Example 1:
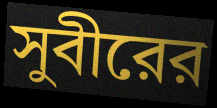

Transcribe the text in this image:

সুবীরের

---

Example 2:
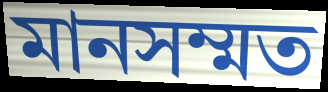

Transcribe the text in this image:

মানসম্মত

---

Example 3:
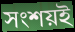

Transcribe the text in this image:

সংশয়ই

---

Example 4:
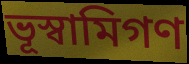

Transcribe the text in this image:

ভূস্বামিগণ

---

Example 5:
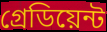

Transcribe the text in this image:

গ্রেডিয়েন্ট